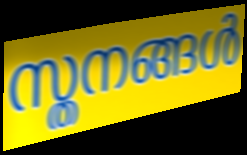
സ്തനങ്ങൾ